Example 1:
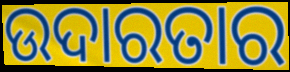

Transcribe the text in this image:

ଉଦାରତାର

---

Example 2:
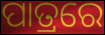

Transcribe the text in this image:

ପାତ୍ରରେ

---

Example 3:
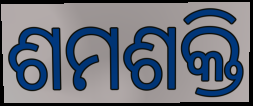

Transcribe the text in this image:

ଶମଶକ୍ତି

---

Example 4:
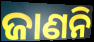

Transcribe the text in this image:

ଜାଣନି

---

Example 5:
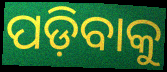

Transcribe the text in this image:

ପଡ଼ିବାକୁ